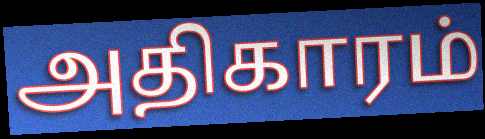
அதிகாரம்